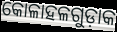
କୋଳାହଳଗୁଡ଼ାକ